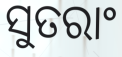
ସୁତରାଂ